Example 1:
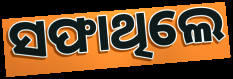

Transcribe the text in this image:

ସଫାଥିଲେ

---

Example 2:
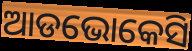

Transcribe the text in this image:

ଆଡଭୋକେସି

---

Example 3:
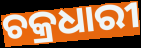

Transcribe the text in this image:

ଚକ୍ରଧାରୀ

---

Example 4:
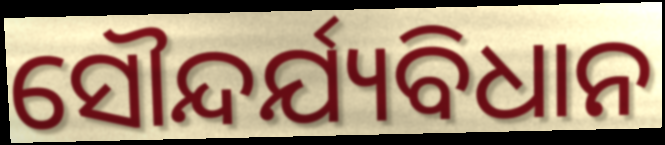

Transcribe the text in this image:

ସୌନ୍ଦର୍ଯ୍ୟବିଧାନ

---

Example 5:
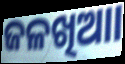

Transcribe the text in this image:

ଜଳଖିଆା